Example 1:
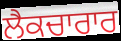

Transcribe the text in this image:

ਲੈਕਚਾਰਾਰ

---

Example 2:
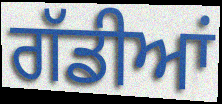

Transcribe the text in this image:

ਗੱਡੀਆਂ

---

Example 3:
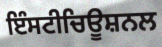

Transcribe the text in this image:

ਇੰਸਟੀਚਿਊਸ਼ਨਲ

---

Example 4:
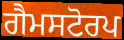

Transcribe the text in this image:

ਗੈਮਸਟੋਰਪ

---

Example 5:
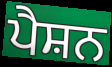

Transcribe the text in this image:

ਪੈਸ਼ਨ